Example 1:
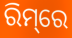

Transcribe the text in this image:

ରିମ୍‌ରେ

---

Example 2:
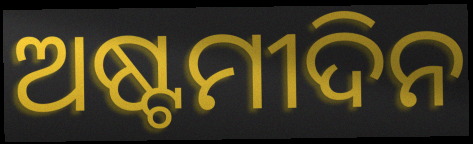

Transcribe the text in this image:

ଅଷ୍ଟମୀଦିନ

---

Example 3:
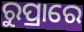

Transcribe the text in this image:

ରୁପ୍ରାରେ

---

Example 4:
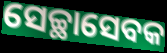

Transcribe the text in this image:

ସେଚ୍ଛାସେବକ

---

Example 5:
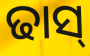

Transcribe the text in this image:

ଢାସ୍